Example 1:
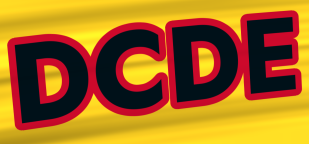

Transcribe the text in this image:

DCDE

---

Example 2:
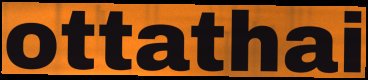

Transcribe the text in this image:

ottathai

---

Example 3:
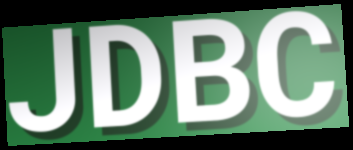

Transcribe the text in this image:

JDBC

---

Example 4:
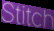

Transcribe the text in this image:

Stitch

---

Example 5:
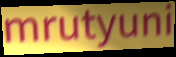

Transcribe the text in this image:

mrutyuni